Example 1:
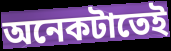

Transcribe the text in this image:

অনেকটাতেই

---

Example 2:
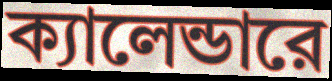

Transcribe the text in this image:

ক্যালেন্ডারে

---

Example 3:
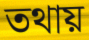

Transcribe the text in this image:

তথায়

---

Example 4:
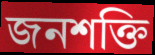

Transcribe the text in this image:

জনশক্তি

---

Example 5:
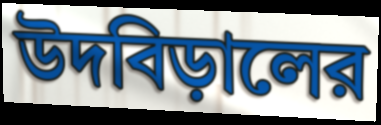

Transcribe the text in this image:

উদবিড়ালের